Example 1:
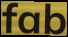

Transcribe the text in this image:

fab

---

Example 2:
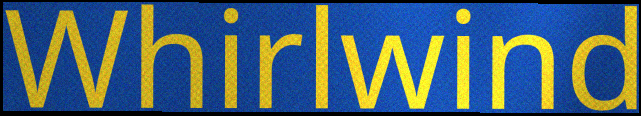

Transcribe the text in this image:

Whirlwind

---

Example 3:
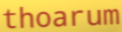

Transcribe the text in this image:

thoarum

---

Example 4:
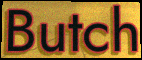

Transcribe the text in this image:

Butch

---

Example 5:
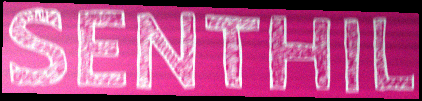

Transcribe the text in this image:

SENTHIL